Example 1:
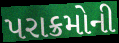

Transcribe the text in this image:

પરાક્રમોની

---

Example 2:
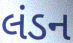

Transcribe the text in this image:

લંડન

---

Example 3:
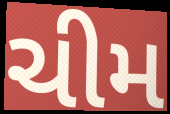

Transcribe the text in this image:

ચીમ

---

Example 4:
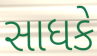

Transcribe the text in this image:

સાધકે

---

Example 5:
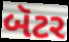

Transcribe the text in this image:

બૅટર